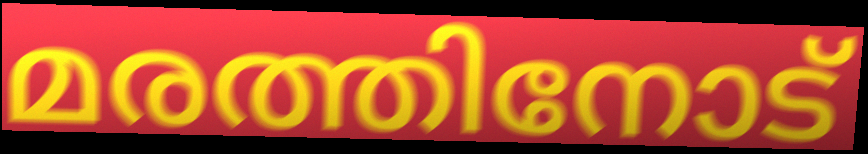
മരത്തിനോട്